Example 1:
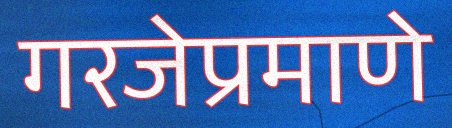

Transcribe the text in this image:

गरजेप्रमाणे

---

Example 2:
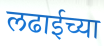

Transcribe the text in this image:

लढाईच्या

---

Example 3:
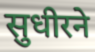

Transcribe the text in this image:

सुधीरने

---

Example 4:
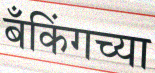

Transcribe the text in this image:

बँकिंगच्या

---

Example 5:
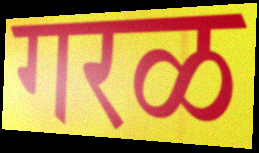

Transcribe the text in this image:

गरळ